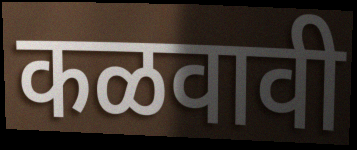
कळवावी